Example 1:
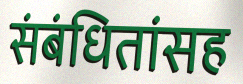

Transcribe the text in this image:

संबंधितांसह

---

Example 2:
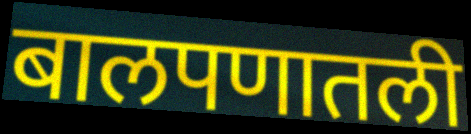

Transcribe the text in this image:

बालपणातली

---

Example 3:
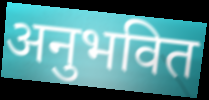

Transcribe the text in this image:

अनुभवित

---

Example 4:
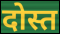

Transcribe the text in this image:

दोस्त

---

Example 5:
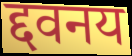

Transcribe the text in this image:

द्दवनय